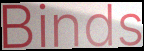
Binds